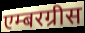
एम्बरग्रीस